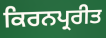
ਕਿਰਨਪ੍ਰਰੀਤ